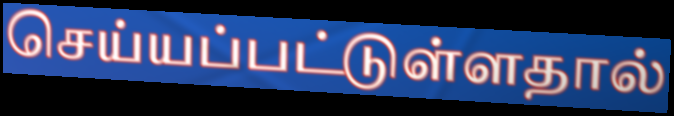
செய்யப்பட்டுள்ளதால்